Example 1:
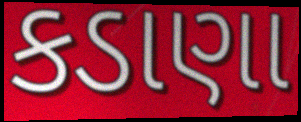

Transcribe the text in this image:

કડાણા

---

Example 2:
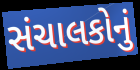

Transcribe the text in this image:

સંચાલકોનું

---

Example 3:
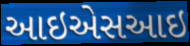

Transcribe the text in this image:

આઇએસઆઇ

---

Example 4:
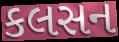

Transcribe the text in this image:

કલસન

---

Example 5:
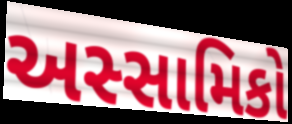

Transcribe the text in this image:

અસ્સામિકો